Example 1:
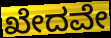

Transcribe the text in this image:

ಖೇದವೇ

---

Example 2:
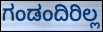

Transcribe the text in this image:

ಗಂಡಂದಿರಿಲ್ಲ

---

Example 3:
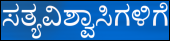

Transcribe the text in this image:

ಸತ್ಯವಿಶ್ವಾಸಿಗಳಿಗೆ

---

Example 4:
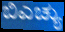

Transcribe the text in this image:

ಬಿಎಚ್ಯು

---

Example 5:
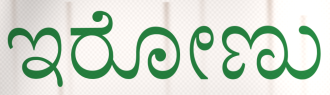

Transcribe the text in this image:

ಇರೋಣು